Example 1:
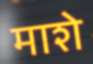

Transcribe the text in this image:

माशे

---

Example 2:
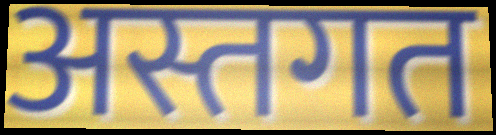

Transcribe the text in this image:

अस्तगत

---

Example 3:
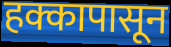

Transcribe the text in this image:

हक्कापासून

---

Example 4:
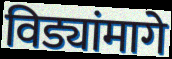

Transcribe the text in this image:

विड्यांमागे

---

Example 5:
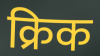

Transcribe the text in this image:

क्रिक